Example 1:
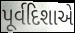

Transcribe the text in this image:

પૂર્વદિશાએ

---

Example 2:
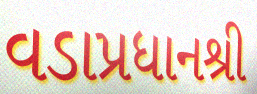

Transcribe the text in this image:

વડાપ્રધાનશ્રી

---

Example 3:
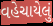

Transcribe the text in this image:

વહેચાયેલું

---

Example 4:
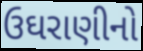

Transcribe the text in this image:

ઉઘરાણીનો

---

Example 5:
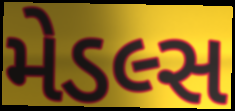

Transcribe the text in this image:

મેડલ્સ